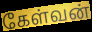
கேள்வன்